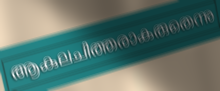
ആകുലചിത്തരാകരുതെന്നു